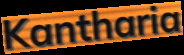
Kantharia